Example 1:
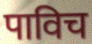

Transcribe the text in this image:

पाविच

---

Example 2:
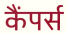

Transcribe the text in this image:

कैंपर्स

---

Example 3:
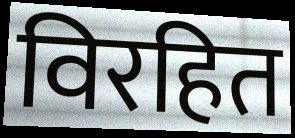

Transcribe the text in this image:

विरहित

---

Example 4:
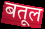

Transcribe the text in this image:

बतूल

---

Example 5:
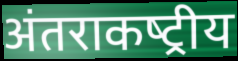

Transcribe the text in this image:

अंतराकष्ट्रीय